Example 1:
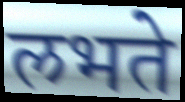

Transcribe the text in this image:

लभते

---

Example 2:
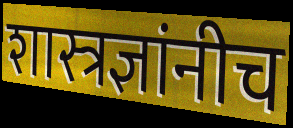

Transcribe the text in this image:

शास्त्रज्ञांनीच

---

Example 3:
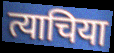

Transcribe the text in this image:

त्याचिया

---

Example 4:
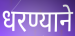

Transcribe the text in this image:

धरण्याने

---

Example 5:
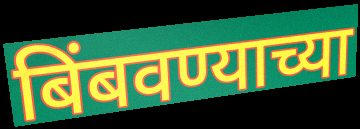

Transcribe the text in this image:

बिंबवण्याच्या